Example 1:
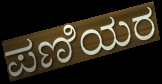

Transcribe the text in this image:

ಪಣಿಯರ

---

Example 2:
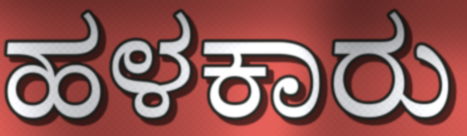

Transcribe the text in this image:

ಹಳಕಾರು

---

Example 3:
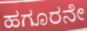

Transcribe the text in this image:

ಹಗೂರನೇ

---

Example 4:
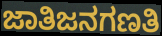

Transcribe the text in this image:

ಜಾತಿಜನಗಣತಿ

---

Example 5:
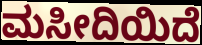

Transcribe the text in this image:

ಮಸೀದಿಯಿದೆ